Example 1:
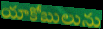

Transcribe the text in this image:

యాకోబులును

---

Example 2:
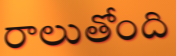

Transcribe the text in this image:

రాలుతోంది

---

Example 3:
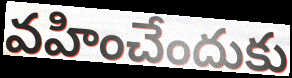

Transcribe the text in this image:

వహించేందుకు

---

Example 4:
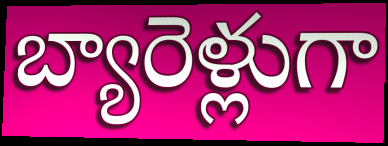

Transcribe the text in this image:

బ్యారెళ్లుగా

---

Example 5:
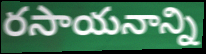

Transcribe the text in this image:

రసాయనాన్ని